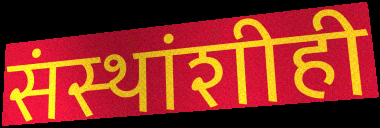
संस्थांशीही